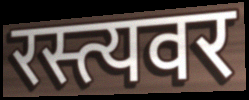
रस्त्यवर